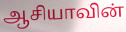
ஆசியாவின்